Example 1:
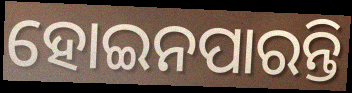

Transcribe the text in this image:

ହୋଇନପାରନ୍ତି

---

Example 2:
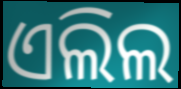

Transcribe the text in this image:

ଏଲିଲ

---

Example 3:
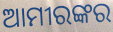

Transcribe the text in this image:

ଆମୀରଙ୍କର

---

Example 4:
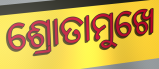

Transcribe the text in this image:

ଶ୍ରୋତାମୁଖେ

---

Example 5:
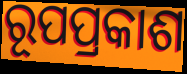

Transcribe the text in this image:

ରୂପପ୍ରକାଶ